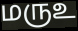
மருஉ